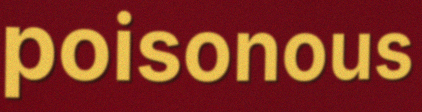
poisonous